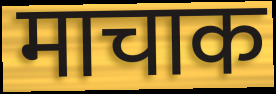
माचाक